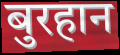
बुरहान